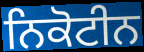
ਨਿਕੋਟੀਨ